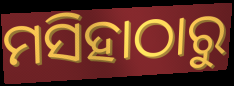
ମସିହାଠାରୁ